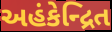
અહંકેન્દ્રિત